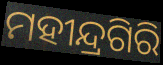
ମହୀନ୍ଦ୍ରଗିରି